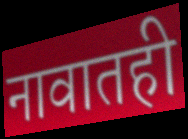
नावातही